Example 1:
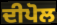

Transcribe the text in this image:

ਦੀਪੋਲ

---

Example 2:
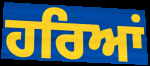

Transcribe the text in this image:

ਹਰਿਆਂ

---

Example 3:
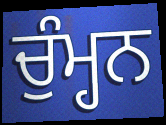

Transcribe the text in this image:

ਚੁੰਮ੍ਹਨ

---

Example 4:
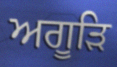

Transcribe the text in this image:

ਅਗੂੜਿ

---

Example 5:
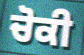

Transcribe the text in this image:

ਚੋਕੀ